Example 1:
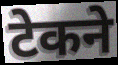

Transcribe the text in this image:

टेकने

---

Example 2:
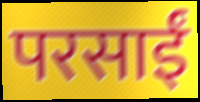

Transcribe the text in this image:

परसाईं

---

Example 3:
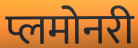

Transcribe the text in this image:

प्लमोनरी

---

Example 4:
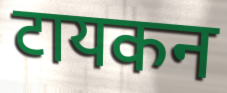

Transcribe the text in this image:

टायकन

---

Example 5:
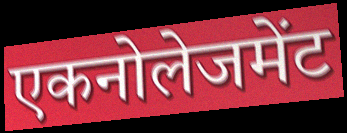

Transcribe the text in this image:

एकनोलेजमेंट